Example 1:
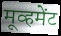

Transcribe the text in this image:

मूव्हमेंट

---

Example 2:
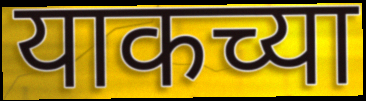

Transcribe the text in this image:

याकच्या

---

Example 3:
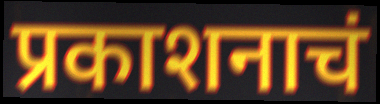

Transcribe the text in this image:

प्रकाशनाचं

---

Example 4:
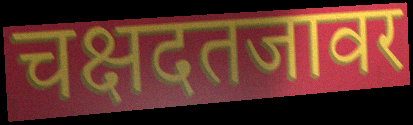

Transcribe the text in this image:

चक्षदतजावर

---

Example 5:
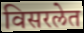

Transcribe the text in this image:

विसरलेत